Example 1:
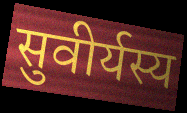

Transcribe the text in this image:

सुवीर्यस्य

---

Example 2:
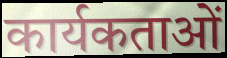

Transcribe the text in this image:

कार्यकताओं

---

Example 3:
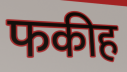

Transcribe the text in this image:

फकीह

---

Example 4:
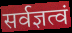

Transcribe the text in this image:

सर्वज्ञत्वं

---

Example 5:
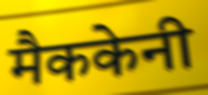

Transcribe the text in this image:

मैककेनी